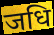
जधि